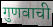
गुणवाची